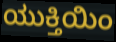
ಯುಕ್ತಿಯಿಂ